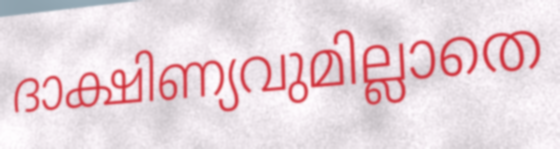
ദാക്ഷിണ്യവുമില്ലാതെ